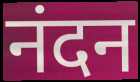
नंदन